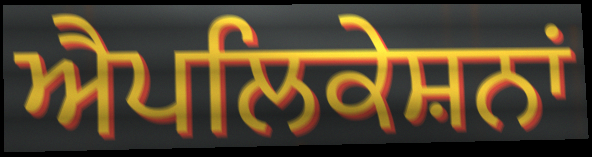
ਐਪਲਿਕੇਸ਼ਨਾਂ